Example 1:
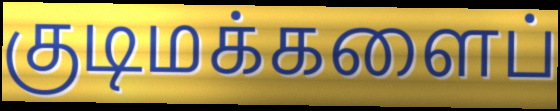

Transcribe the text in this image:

குடிமக்களைப்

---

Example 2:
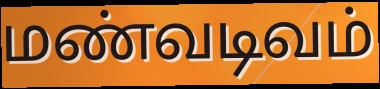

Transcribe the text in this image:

மண்வடிவம்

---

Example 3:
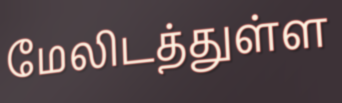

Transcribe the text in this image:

மேலிடத்துள்ள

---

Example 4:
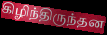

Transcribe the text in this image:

கிழிந்திருந்தன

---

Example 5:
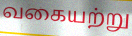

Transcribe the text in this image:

வகையற்று